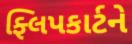
ફ્લિપકાર્ટને